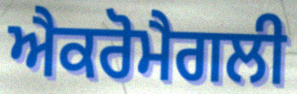
ਐਕਰੋਮੈਗਲੀ